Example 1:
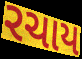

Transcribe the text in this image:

રચાય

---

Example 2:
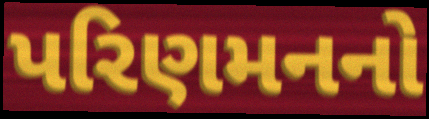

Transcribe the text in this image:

પરિણમનનો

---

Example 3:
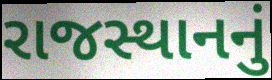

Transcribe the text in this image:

રાજસ્થાનનું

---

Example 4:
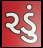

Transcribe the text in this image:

રડું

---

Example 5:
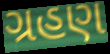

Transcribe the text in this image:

ગ્રહણ